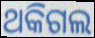
ଥକିଗଲ